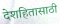
देशहितासाठी